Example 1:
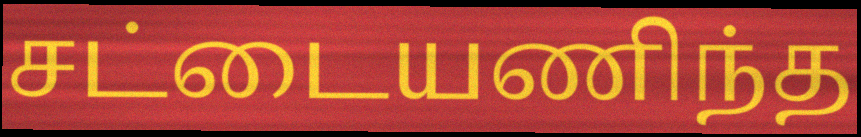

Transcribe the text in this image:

சட்டையணிந்த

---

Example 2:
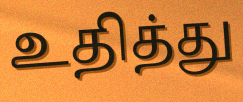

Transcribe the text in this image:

உதித்து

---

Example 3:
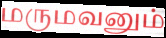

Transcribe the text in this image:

மருமவனும்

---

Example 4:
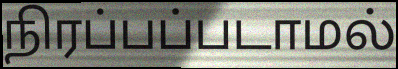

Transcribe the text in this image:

நிரப்பப்படாமல்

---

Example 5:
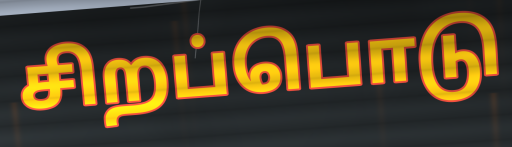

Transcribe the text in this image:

சிறப்பொடு